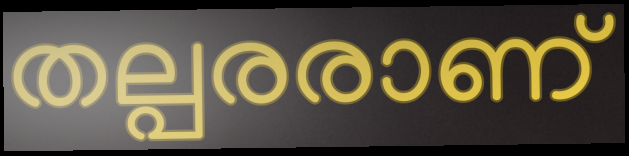
തല്പരരാണ്